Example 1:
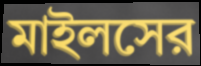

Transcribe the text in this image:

মাইলসের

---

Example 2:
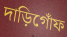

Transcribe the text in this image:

দাড়িগোঁফ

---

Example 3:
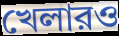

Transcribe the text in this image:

খেলারও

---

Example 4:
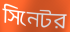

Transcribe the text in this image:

সিনেটর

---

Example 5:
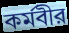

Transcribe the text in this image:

কর্মবীর